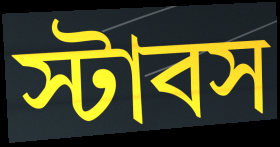
স্টাবস